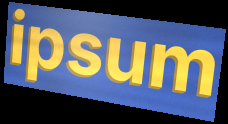
ipsum